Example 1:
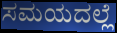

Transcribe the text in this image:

ಸಮಯದಲ್ಲೆ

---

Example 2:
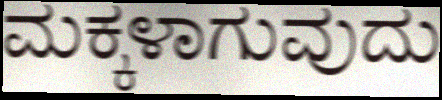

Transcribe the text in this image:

ಮಕ್ಕಳಾಗುವುದು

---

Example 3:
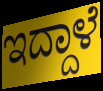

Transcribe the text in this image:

ಇದ್ದಾಳೆ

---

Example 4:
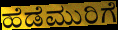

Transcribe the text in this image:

ಹೆಡೆಮುರಿಗೆ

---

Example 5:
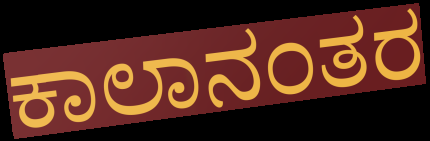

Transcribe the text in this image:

ಕಾಲಾನಂತರ